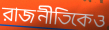
রাজনীতিকেও